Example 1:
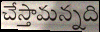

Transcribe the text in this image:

చేస్తామన్నది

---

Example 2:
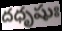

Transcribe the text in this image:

దధృషుః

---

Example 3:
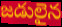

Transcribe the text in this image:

జడులైన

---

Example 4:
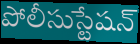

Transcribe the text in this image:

పోలీసుస్టేషన్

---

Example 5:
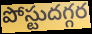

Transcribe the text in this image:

పోస్టుదగ్గర